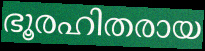
ഭൂരഹിതരായ